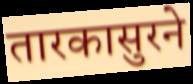
तारकासुरने